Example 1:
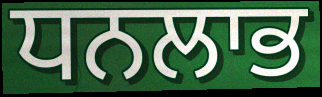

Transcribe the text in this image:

ਧਨਲਾਭ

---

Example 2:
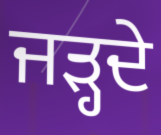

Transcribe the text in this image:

ਜੜ੍ਹਦੇ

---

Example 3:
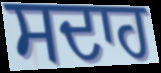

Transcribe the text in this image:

ਸਦਾਹ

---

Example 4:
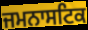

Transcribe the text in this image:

ਜਮਨਾਸਟਿਕ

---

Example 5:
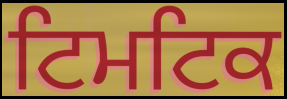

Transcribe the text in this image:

ਟਿਮਟਿਕ